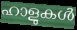
ഹാളുകൾ